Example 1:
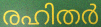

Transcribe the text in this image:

രഹിതർ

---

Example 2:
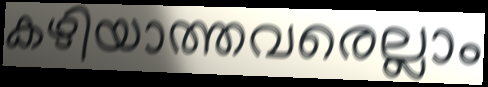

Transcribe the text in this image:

കഴിയാത്തവരെല്ലാം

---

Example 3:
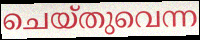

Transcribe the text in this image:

ചെയ്തുവെന്ന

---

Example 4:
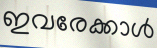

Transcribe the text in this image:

ഇവരേക്കാൾ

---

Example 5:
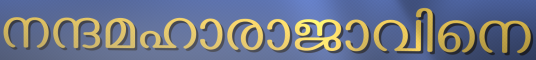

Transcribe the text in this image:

നന്ദമഹാരാജാവിനെ